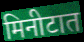
मिनीटात